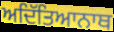
ਅਦਿੱਤਿਆਨਾਥ